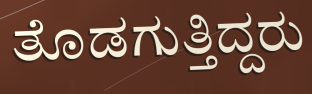
ತೊಡಗುತ್ತಿದ್ದರು